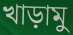
খাড়ামু